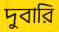
দুবারি